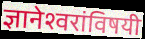
ज्ञानेश्वरांविषयी